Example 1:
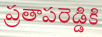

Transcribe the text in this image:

ప్రతాపరెడ్డికి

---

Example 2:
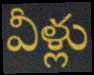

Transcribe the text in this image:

వీళ్లు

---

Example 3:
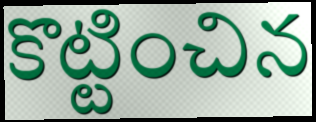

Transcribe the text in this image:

కొట్టించిన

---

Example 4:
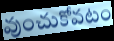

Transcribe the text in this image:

వుంచుకోవటం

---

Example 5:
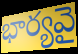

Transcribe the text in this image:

భార్యవై